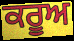
ਕਰੂਅ